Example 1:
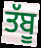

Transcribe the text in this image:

ਤੱਬੂ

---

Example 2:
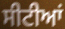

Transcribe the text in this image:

ਸੀਟੀਆਂ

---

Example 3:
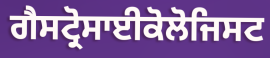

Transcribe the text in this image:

ਗੈਸਟ੍ਰੋਸਾਈਕੋਲੋਜਿਸਟ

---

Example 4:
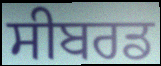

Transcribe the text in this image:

ਸੀਬਰਡ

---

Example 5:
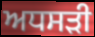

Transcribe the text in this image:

ਅਧਸੜੀ